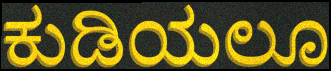
ಕುಡಿಯಲೂ